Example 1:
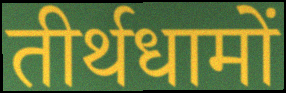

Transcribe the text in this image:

तीर्थधामों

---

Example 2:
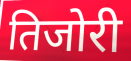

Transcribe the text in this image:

तिजोरी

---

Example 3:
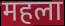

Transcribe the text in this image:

महला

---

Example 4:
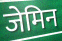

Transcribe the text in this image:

जेमिन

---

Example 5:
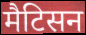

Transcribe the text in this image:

मैटिसन